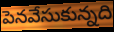
పెనవేసుకున్నది